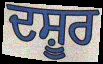
ਦਸ਼ੂਰ